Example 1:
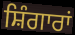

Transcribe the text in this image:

ਸ਼ਿੰਗਾਰਾਂ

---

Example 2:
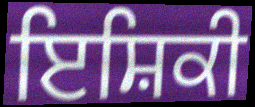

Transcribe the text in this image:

ਇਸ਼ਿਕੀ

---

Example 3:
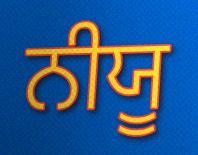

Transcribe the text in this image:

ਨੀਯੂ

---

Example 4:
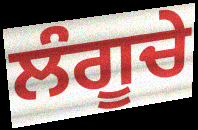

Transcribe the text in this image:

ਲੰਗੂਚੇ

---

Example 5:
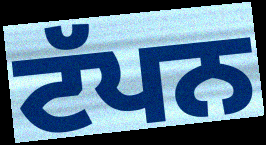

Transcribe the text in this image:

ਟੱਪਨ